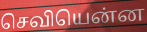
செவியென்ன